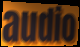
audio